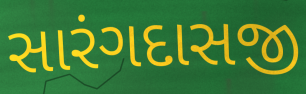
સારંગદાસજી